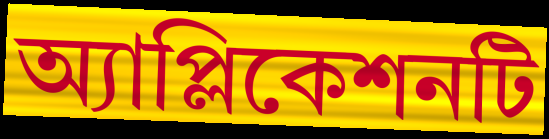
অ্যাপ্লিকেশনটি